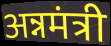
अन्नमंत्री